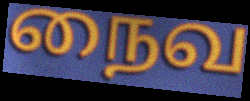
நைவ